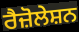
ਰੈਜ਼ੋਲੇਸ਼ਨ